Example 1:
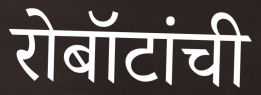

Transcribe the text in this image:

रोबॉटांची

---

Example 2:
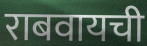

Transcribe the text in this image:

राबवायची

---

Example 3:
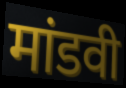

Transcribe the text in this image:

मांडवी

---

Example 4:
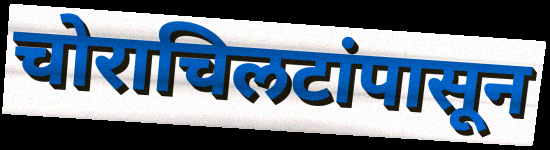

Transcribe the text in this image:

चोराचिलटांपासून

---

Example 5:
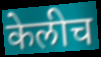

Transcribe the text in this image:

केलीच